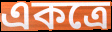
একত্ৰে